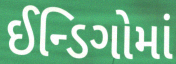
ઈન્ડિગોમાં